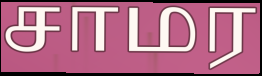
சாமர